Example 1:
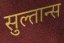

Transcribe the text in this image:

सुल्तान्स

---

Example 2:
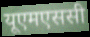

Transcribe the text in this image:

यूएमएससी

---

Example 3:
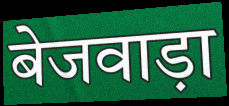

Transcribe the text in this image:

बेजवाड़ा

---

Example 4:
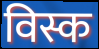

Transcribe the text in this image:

विस्क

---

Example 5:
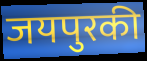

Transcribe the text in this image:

जयपुरकी